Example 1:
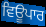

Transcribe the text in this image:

ਵਿਊਪਾਰ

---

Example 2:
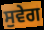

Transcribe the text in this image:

ਸੁਵੇਗ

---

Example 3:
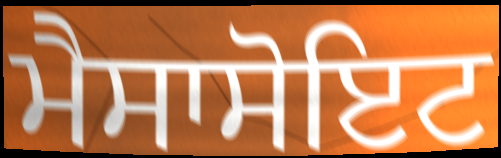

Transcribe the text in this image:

ਮੈਸਾਸੋਇਟ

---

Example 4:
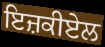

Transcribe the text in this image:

ਇਜ਼ਕੀਏਲ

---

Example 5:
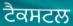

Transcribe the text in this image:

ਟੈਕਸਟਲ